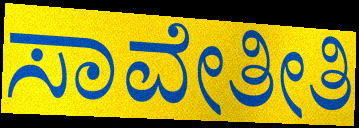
ಸಾವೇತೀತಿ